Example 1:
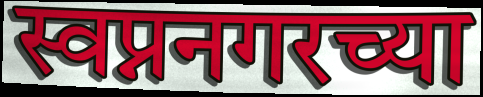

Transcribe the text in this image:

स्वप्ननगरच्या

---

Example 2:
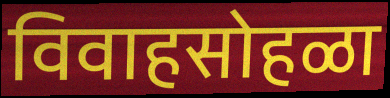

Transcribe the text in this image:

विवाहसोहळा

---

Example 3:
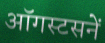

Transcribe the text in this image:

ऑगस्टसनें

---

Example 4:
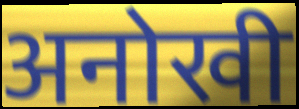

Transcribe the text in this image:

अनोखी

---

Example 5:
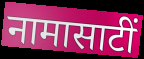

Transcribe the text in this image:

नामासाटीं